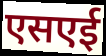
एसएई